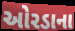
ઓરડાના